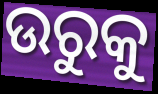
ଉରୁକୁ